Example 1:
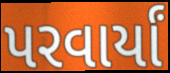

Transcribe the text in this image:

પરવાર્યાં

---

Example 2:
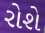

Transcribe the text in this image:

રોશે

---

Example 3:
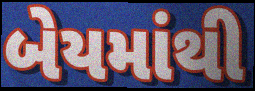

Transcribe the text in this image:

બેયમાંથી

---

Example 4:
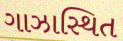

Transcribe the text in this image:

ગાઝાસ્થિત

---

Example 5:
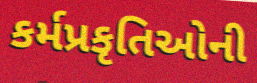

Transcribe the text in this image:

કર્મપ્રકૃતિઓની